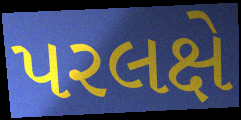
પરલક્ષે